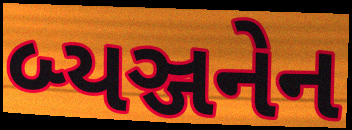
બ્યઞ્જનેન